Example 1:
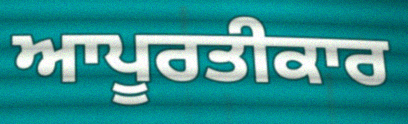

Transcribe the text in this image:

ਆਪੂਰਤੀਕਾਰ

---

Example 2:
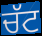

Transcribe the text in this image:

ਚੱਟ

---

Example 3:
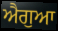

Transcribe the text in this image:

ਐਗੁਆ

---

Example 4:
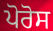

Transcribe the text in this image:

ਪੋਰੋਸ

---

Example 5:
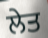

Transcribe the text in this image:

ਲੇਤ